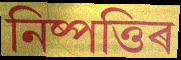
নিষ্পত্তিৰ